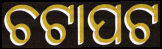
ଚଟାପଟ